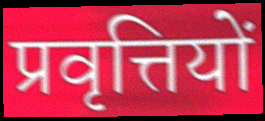
प्रवृत्तियों